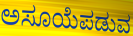
ಅಸೂಯೆಪಡುವ